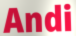
Andi